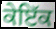
ਕੇਇੱਕ